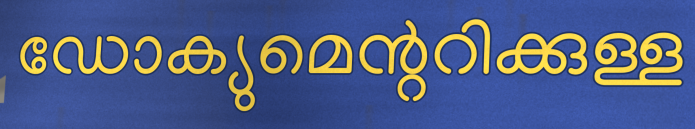
ഡോക്യുമെന്ററിക്കുള്ള